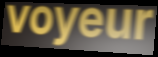
voyeur